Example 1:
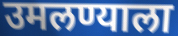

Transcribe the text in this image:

उमलण्याला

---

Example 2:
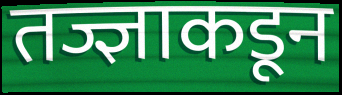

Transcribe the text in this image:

तज्ज्ञाकडून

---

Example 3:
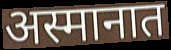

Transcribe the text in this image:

अस्मानात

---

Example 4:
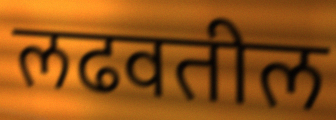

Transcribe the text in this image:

लढवतील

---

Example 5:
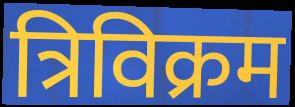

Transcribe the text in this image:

त्रिविक्रम